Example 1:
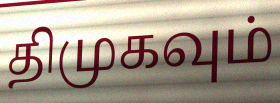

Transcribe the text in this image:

திமுகவும்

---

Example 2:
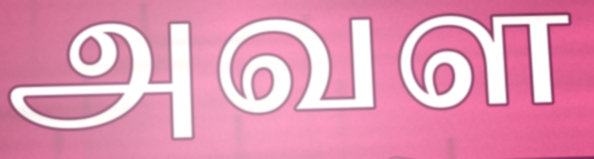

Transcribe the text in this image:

அவள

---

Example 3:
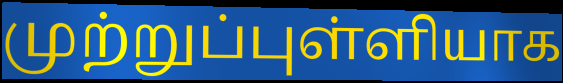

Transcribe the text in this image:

முற்றுப்புள்ளியாக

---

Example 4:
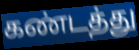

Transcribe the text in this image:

கண்டத்து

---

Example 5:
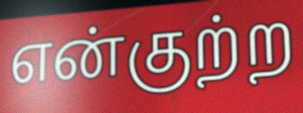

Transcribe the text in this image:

என்குற்ற